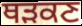
ਥੜਕਣ